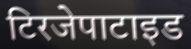
टिरजेपाटाइड